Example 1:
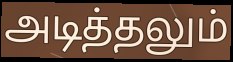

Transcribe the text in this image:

அடித்தலும்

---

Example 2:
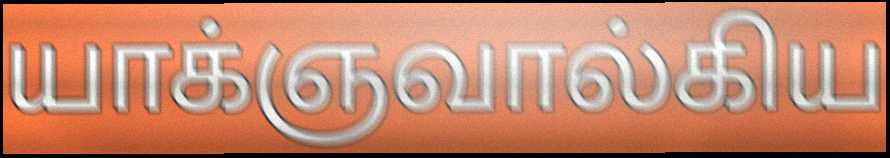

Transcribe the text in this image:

யாக்ஞவால்கிய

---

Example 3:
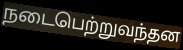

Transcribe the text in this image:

நடைபெற்றுவந்தன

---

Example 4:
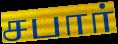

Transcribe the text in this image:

சபார்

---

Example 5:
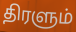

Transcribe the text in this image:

திரளும்